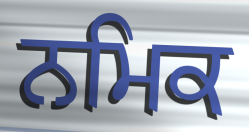
ਨਮਿਕ